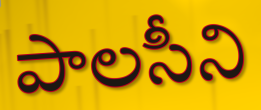
పాలసీని